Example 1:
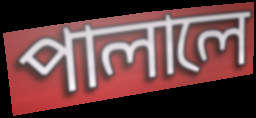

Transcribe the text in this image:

পালালে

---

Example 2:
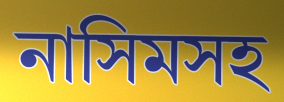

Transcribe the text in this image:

নাসিমসহ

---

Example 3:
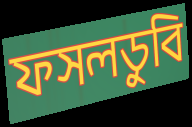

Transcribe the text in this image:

ফসলডুবি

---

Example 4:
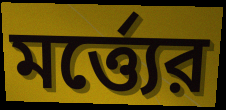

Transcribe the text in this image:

মর্ত্ত্যের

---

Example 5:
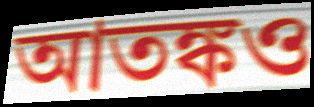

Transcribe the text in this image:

আতঙ্কও